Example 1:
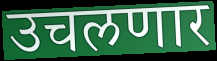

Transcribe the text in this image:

उचलणार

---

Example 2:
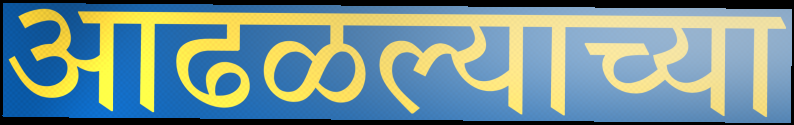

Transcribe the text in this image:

आढळल्याच्या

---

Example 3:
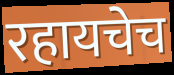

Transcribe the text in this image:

रहायचेच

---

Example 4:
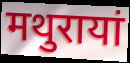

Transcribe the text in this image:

मथुरायां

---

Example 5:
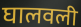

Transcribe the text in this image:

घालवली